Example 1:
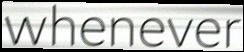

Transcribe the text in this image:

whenever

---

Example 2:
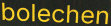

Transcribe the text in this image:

bolechen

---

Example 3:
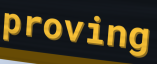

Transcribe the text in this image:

proving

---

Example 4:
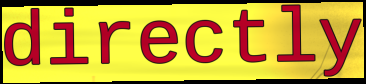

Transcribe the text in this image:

directly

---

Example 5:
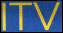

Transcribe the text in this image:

ITV